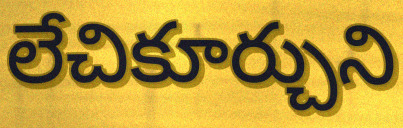
లేచికూర్చుని